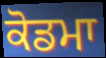
ਕੋਡਮਾ